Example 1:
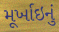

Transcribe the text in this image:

મૂર્ખાઇનું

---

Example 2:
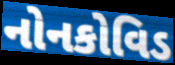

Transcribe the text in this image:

નોનકોવિડ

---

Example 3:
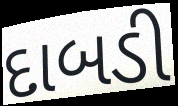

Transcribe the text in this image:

દાબડી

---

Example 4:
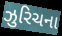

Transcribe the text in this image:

ઝુરિચના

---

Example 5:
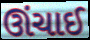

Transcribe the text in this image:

ઊંચાઈ